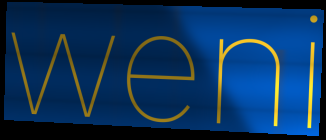
weni